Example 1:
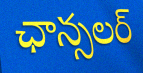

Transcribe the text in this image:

ఛాన్సలర్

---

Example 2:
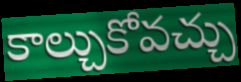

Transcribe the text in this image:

కాల్చుకోవచ్చు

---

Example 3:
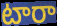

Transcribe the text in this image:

టారా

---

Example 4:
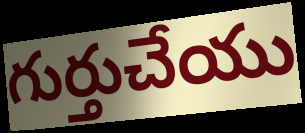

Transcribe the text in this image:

గుర్తుచేయు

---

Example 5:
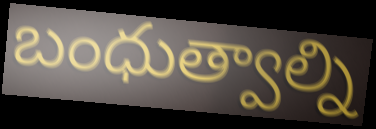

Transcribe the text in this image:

బంధుత్వాల్ని